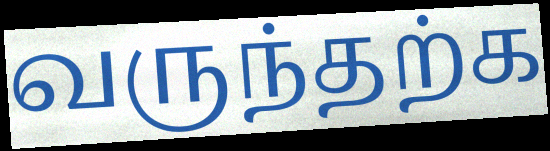
வருந்தற்க